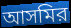
আসমির